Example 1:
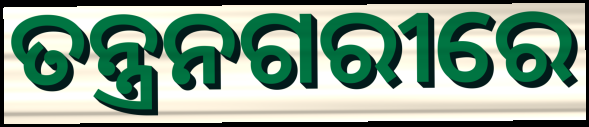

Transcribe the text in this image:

ତନ୍ତ୍ରନଗରୀରେ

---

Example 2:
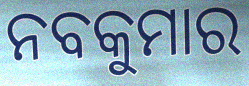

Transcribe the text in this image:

ନବକୁମାର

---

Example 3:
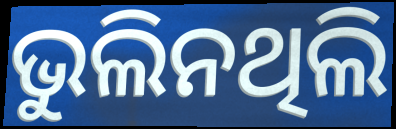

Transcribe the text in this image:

ଭୁଲିନଥିଲି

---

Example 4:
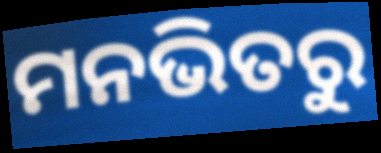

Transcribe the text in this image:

ମନଭିତରୁ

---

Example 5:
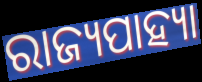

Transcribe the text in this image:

ରାଜ୍ୟପାହ୍ୟା